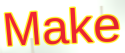
Make